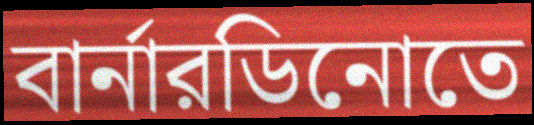
বার্নারডিনোতে